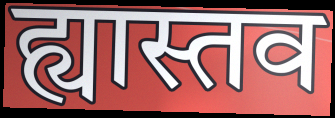
ह्यास्तव